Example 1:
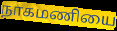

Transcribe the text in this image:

நாகமணியை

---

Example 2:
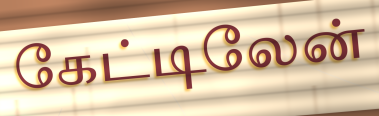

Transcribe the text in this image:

கேட்டிலேன்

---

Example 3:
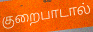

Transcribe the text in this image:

குறைபாடால்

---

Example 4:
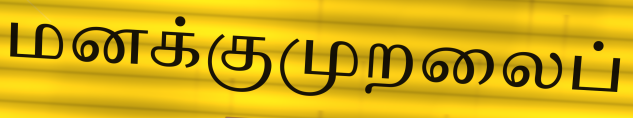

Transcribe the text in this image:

மனக்குமுறலைப்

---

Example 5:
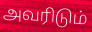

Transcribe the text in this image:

அவரிடும்